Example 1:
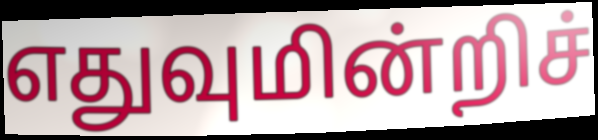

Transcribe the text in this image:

எதுவுமின்றிச்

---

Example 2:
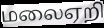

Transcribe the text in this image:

மலைஏறி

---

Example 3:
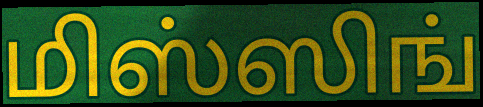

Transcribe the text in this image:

மிஸ்ஸிங்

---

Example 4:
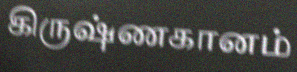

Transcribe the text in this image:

கிருஷ்ணகானம்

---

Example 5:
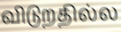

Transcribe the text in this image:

விடுறதில்ல